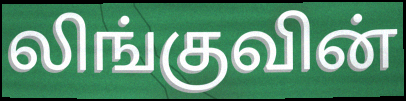
லிங்குவின்